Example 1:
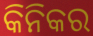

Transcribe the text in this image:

କିନିକର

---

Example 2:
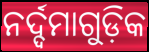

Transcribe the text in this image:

ନର୍ଦ୍ଦମାଗୁଡ଼ିକ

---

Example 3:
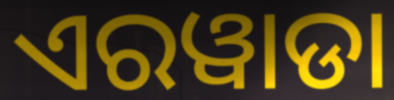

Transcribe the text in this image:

ଏରୱାଡା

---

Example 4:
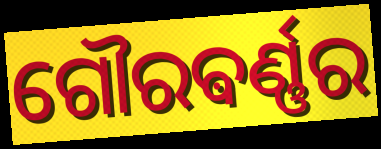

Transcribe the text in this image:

ଗୌରଵର୍ଣ୍ଣର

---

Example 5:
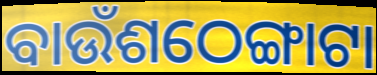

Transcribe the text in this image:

ବାଉଁଶଠେଙ୍ଗାଟା